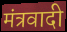
मंत्रवादी